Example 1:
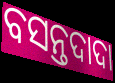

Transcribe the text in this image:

ବସନ୍ତଦାଦା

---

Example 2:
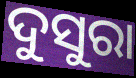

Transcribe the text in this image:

ଦୁସୁରା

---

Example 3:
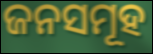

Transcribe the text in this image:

ଜନସମୂହ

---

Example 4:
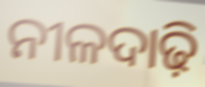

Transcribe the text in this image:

ନୀଳଦାଢ଼ି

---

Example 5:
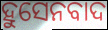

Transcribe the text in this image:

ହୁସେନବାଦ